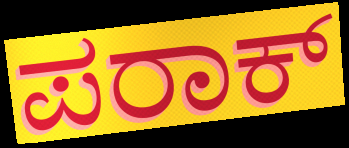
ಪರಾಕ್